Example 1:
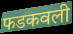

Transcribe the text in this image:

फडकवली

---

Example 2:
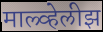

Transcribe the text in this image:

माल्व्हेलीझ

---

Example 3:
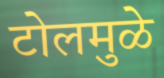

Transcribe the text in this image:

टोलमुळे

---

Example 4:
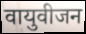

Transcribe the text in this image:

वायुवीजन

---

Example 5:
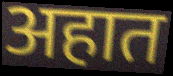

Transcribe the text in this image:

अहात